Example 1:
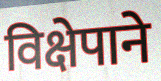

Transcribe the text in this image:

विक्षेपाने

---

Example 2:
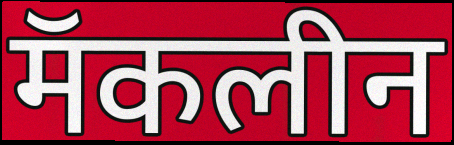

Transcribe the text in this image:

मॅकलीन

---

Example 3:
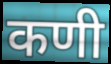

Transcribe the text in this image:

कणी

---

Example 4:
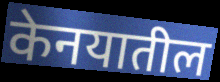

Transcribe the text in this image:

केनयातील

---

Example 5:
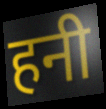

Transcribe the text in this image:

हनी